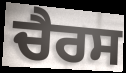
ਚੈਰਸ